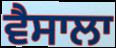
ਵੈਸਾਲਾ